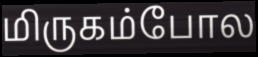
மிருகம்போல